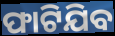
ଫାଟିଯିବ